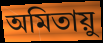
অমিতায়ু